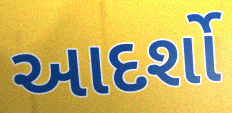
આદર્શો